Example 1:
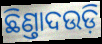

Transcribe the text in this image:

ଛିଣ୍ତାଦଉଡ଼ି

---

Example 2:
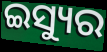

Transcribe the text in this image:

ଇସ୍ୟୁର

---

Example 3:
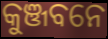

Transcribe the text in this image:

କୁଞ୍ଜବନେ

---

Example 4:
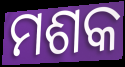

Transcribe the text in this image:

ମଶକ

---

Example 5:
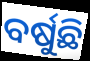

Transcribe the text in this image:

ବର୍ଷୁଛି